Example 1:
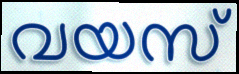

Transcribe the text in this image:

വയസ്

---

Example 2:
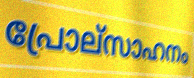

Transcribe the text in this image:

പ്രോല്സാഹനം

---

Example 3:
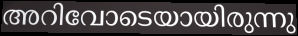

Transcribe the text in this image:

അറിവോടെയായിരുന്നു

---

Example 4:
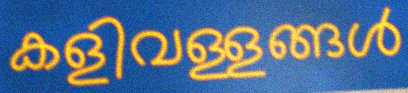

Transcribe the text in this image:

കളിവള്ളങ്ങൾ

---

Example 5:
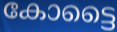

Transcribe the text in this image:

കോട്ടൈ